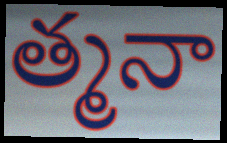
త్మనా